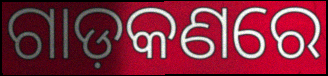
ଗାଡ଼କଣରେ